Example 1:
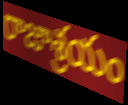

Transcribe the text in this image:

రాజాశ్రయం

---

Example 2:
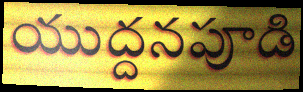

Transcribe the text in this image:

యుద్దనపూడి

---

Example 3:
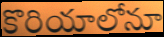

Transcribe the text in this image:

కొరియాలోనూ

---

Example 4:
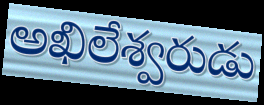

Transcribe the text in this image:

అఖిలేశ్వరుడు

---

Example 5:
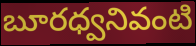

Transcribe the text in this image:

బూరధ్వనివంటి